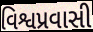
વિશ્વપ્રવાસી